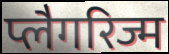
प्लैगरिज्म